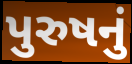
પુરુષનું